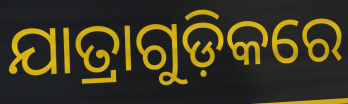
ଯାତ୍ରାଗୁଡ଼ିକରେ